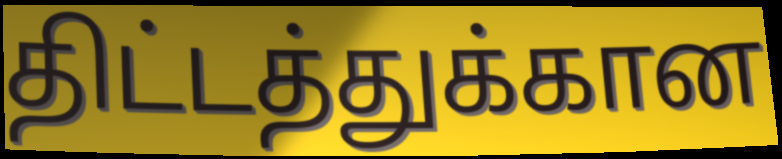
திட்டத்துக்கான